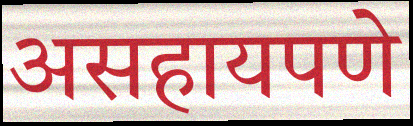
असहायपणे